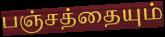
பஞ்சத்தையும்